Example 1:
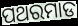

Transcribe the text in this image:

ପଥରମାଡ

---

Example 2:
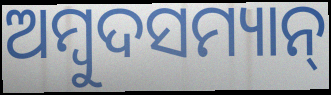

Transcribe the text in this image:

ଅମ୍ୱୁଦସମ୍ୟାନ୍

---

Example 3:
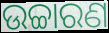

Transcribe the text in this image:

ଉଚ୍ଚାରଣ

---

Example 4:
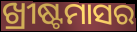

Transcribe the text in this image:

ଖ୍ରୀଷ୍ଟମାସର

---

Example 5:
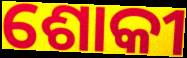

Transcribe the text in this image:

ଶୋକୀ